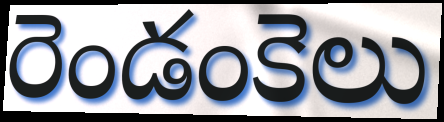
రెండంకెలు